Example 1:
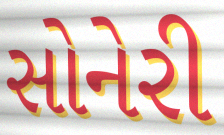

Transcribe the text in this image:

સોનેરી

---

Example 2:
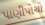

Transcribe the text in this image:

પાણીપોચો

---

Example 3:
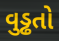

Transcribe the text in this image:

વુડ્ઢતો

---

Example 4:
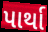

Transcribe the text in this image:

પાર્થા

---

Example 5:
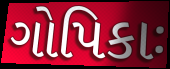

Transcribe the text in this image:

ગોપિકાઃ